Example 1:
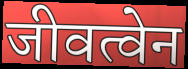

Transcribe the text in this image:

जीवत्वेन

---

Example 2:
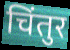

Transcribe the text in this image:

चिंतुर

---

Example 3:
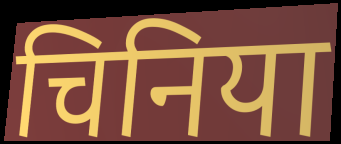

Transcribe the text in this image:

चिनिया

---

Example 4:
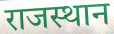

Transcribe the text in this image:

राजस्‍थान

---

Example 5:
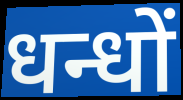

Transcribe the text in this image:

धन्धों